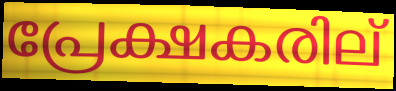
പ്രേക്ഷകരില്